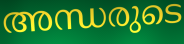
അന്ധരുടെ